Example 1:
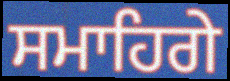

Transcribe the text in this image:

ਸਮਾਹਿਗੇ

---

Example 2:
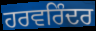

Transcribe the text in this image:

ਹਰਵਰਿੰਦਰ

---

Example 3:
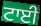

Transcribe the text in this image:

ਟਾਈ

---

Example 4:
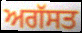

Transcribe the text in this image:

ਅਗੱਸਤ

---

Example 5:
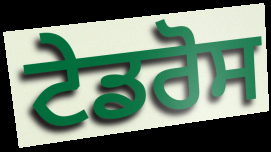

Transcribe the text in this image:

ਟੇਡਰੋਸ